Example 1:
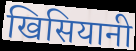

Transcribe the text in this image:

खिसियानी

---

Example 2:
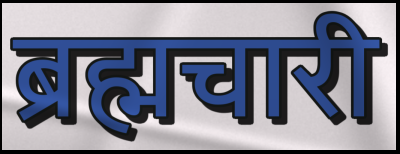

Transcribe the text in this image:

ब्रह्मचारी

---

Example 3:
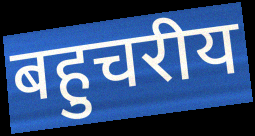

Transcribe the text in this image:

बहुचरीय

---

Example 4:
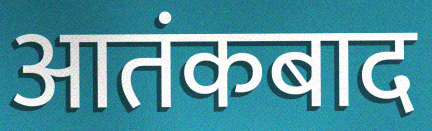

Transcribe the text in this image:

आतंकबाद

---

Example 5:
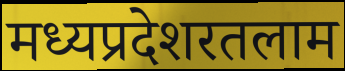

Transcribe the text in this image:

मध्यप्रदेशरतलाम